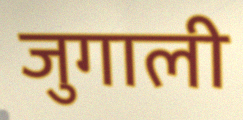
जुगाली